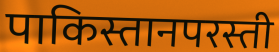
पाकिस्तानपरस्ती